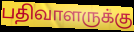
பதிவாளருக்கு